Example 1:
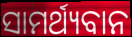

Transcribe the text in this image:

ସାମର୍ଥ୍ୟବାନ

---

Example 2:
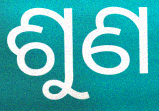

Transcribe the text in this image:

ଶୁଣ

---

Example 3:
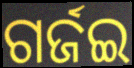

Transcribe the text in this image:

ଗର୍ଜଇ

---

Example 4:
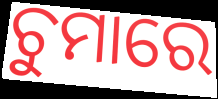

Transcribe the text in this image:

ଚୁମାରେ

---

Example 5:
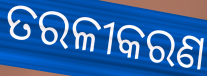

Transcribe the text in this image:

ତରଳୀକରଣ